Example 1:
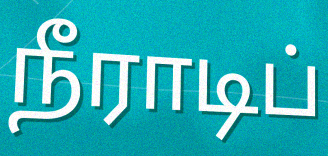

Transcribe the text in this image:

நீராடிப்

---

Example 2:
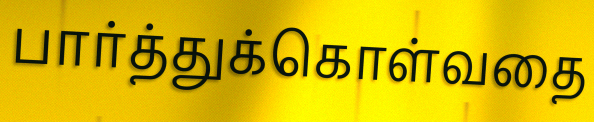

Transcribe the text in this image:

பார்த்துக்கொள்வதை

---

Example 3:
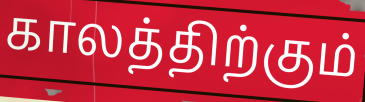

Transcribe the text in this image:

காலத்திற்கும்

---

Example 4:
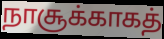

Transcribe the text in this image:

நாசூக்காகத்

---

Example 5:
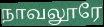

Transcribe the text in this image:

நாவலூரே